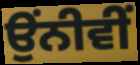
ਉੰਨੀਵੀਂ